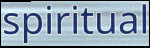
spiritual